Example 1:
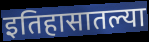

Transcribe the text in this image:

इतिहासातल्या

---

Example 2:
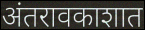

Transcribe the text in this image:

अंतरावकाशात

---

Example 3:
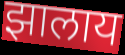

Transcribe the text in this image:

झालाय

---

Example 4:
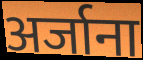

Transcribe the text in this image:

अर्जाना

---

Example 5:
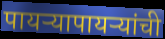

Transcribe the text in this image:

पायऱ्यापायऱ्यांची